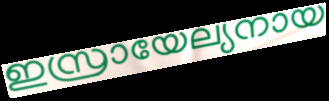
ഇസ്രായേല്യനായ